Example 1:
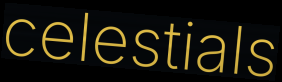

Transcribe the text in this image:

celestials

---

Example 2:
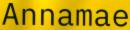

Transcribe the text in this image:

Annamae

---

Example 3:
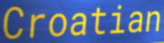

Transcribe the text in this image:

Croatian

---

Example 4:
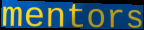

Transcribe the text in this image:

mentors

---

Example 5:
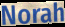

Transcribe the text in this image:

Norah